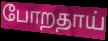
போறதாய்